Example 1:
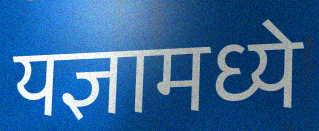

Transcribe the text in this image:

यज्ञामध्ये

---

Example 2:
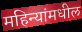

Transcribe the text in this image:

महिन्यांमधील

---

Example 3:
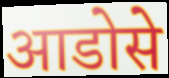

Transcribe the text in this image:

आडोसे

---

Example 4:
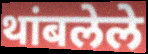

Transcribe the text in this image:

थांबलेले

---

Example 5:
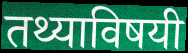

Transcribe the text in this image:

तथ्याविषयी